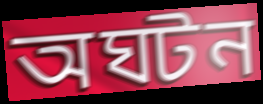
অঘটন